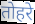
तोहरे